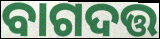
ବାଗଦତ୍ତ